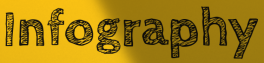
Infography